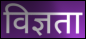
विज्ञता